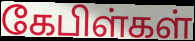
கேபிள்கள்